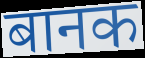
बानक